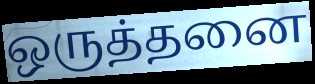
ஒருத்தனை